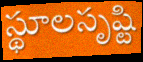
స్థూలసృష్టి